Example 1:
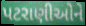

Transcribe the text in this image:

પટરાણીઓને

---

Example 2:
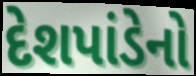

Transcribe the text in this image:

દેશપાંડેનો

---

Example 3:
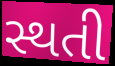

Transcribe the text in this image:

સ્થતી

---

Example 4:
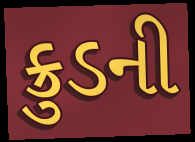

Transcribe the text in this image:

ક્રુડની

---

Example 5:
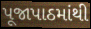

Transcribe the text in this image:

પૂજાપાઠમાંથી